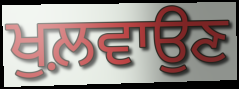
ਖੁਲ਼ਵਾਉਣ